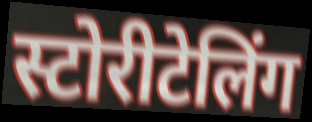
स्टोरीटेलिंग